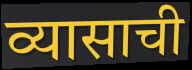
व्यासाची